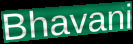
Bhavani